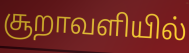
சூறாவளியில்